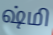
ஷ்மி